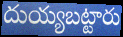
దుయ్యబట్టారు